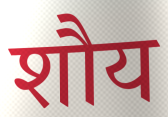
शौय